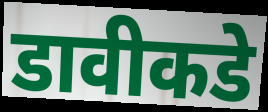
डावीकडे